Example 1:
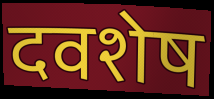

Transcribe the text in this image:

दवशेष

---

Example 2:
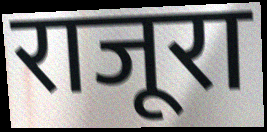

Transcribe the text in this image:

राजूरा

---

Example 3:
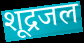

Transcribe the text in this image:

शूद्रजल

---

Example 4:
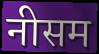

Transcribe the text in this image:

नीसम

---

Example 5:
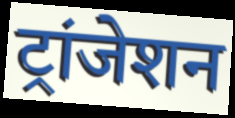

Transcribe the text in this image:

ट्रांजेशन